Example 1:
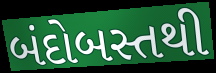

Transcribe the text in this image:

બંદોબસ્તથી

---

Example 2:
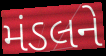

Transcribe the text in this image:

મંડલને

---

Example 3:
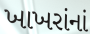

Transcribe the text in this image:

ખાખરાંનાં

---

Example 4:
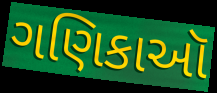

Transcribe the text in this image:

ગણિકાઑ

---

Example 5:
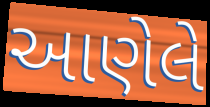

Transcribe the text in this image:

આણેલે